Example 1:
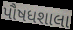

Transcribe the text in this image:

પૌષધશાલા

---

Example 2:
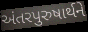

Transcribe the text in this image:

અંતરપુરુષાર્થને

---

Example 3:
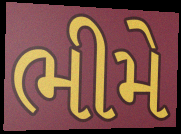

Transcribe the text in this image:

ભીમે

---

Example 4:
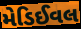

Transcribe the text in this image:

મેડિઈવલ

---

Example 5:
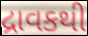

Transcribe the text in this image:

દ્રાવકથી